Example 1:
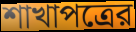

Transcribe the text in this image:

শাখাপত্রের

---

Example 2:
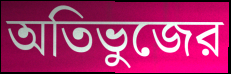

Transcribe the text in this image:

অতিভুজের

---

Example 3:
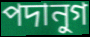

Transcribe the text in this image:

পদানুগ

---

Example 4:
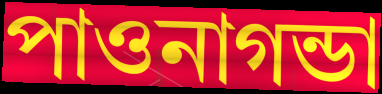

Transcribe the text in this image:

পাওনাগন্ডা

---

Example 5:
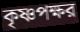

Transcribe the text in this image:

কৃষ্ণপক্ষর